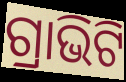
ଗ୍ରାଭିଟି